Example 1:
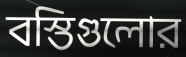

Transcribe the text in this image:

বস্তিগুলোর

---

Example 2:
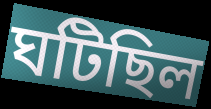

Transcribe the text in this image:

ঘটিছিল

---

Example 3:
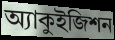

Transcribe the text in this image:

অ্যাকুইজিশন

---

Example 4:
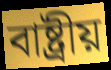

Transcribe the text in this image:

বাষ্ট্রীয়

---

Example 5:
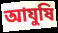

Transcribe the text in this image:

আযুষি